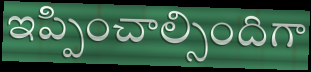
ఇప్పించాల్సిందిగా